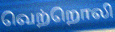
வெற்றொலி